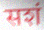
सशं